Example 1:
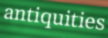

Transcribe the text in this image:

antiquities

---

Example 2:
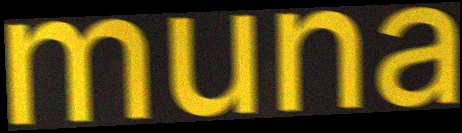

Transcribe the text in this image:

muna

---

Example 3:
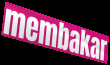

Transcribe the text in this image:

membakar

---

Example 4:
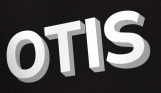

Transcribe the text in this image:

OTIS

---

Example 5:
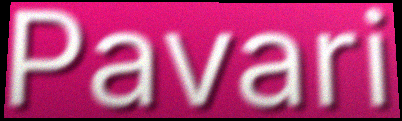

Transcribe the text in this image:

Pavari